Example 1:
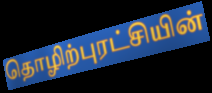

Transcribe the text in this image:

தொழிற்புரட்சியின்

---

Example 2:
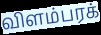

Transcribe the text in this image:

விளம்பரக்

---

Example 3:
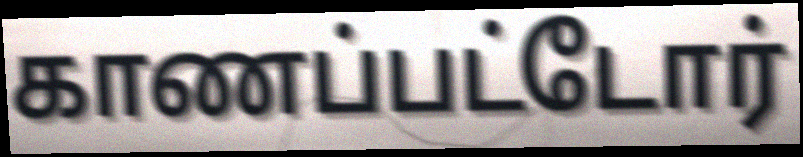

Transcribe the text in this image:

காணப்பட்டோர்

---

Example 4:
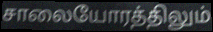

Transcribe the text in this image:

சாலையோரத்திலும்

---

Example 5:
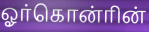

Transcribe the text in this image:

ஓர்கொன்ரின்